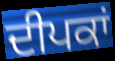
ਦੀਪਕਾਂ